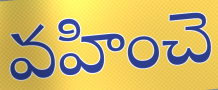
వహించె